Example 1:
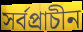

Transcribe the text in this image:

সর্বপ্রাচীন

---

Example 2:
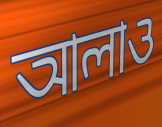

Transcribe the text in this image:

আলাও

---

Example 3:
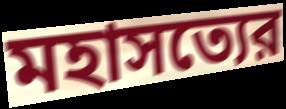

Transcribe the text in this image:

মহাসত্যের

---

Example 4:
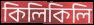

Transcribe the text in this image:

কিলিকিলি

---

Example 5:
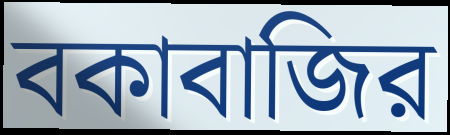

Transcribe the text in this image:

বকাবাজির